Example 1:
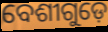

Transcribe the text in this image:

ବେଶୀଗୁଡ଼େ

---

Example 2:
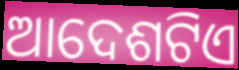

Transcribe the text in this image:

ଆଦେଶଟିଏ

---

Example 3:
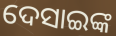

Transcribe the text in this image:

ଦେସାଇଙ୍କ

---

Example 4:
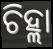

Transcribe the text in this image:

ଚିହ୍ଲା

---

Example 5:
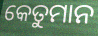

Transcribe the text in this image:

କେତୁମାନ